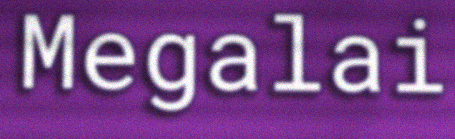
Megalai